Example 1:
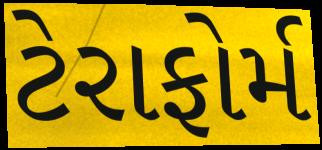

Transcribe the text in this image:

ટેરાફોર્મ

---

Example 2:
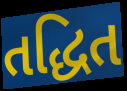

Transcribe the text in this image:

તદ્ધિત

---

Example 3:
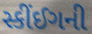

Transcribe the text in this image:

સ્કીંઈગની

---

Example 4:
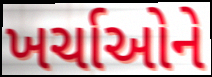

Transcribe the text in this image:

ખર્ચાઓને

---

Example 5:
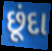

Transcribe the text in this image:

છૂંદા